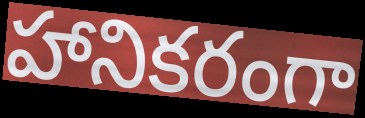
హానికరంగా